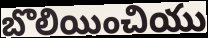
బొలియించియు